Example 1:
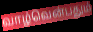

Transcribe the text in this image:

வாழ்வென்பதும்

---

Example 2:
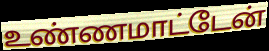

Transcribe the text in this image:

உண்ணமாட்டேன்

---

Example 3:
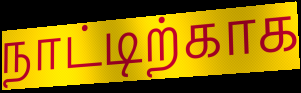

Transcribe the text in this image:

நாட்டிற்காக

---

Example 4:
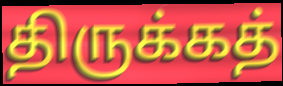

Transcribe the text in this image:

திருக்கத்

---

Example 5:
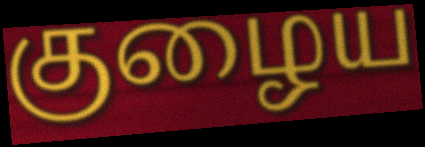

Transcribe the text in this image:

குழைய